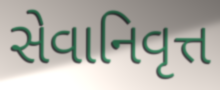
સેવાનિવૃત્ત